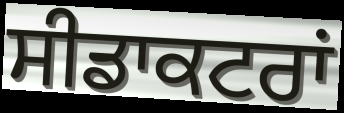
ਸੀਡਾਕਟਰਾਂ